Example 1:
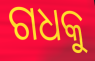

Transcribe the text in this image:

ଗଧକୁ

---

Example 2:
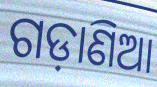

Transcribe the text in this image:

ଗଡ଼ାଣିଆ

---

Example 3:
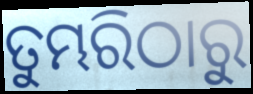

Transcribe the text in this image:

ତୁମ୍ଭରିଠାରୁ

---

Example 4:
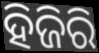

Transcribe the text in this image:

ହିଜିରି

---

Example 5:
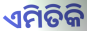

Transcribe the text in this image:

ଏମିତିକି